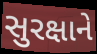
સુરક્ષાને